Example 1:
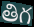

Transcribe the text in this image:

తిగ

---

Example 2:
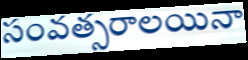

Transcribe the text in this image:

సంవత్సరాలయినా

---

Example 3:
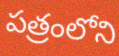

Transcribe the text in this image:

పత్రంలోని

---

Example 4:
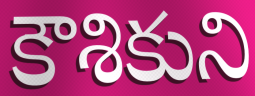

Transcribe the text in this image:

కౌశికుని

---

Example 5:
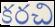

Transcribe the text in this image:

కరచి